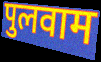
पुलवाम